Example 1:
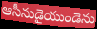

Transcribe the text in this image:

ఆసీనుడైయుండెను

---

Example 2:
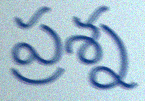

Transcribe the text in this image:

ప్రశ్న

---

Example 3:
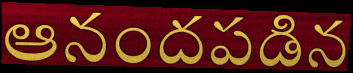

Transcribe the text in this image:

ఆనందపడిన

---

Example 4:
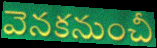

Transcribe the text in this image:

వెనకనుంచీ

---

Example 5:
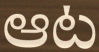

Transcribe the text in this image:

ఆట